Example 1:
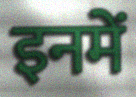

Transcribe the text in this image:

इनमें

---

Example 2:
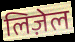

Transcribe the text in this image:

लिज़ेल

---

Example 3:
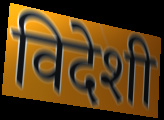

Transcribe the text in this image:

विदेशी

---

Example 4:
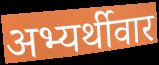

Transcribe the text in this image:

अभ्यर्थीवार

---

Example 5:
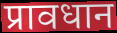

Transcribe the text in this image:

प्रावधान